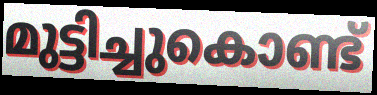
മുട്ടിച്ചുകൊണ്ട്